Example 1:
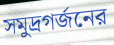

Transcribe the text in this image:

সমুদ্রগর্জনের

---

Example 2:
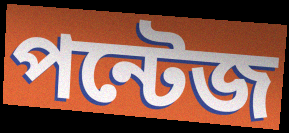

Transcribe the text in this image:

পন্টেজ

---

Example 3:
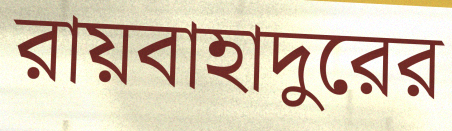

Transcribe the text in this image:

রায়বাহাদুরের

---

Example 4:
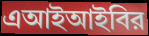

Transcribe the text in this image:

এআইআইবির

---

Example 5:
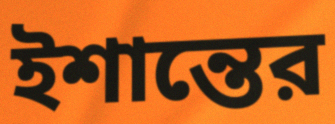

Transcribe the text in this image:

ইশান্তের